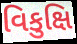
વિકુક્ષિ